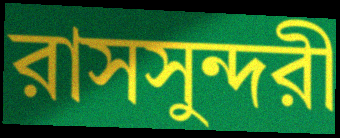
রাসসুন্দরী